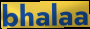
bhalaa